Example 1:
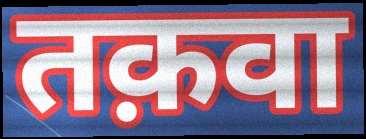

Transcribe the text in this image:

तक़वा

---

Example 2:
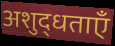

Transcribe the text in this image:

अशुद्धताएँ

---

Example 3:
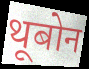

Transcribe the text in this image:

थूबोन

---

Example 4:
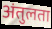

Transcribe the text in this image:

अंतुलता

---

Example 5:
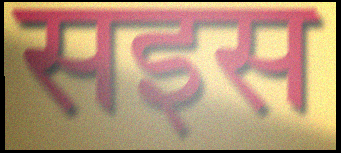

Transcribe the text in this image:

सइस